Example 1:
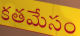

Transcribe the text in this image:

కతమేసం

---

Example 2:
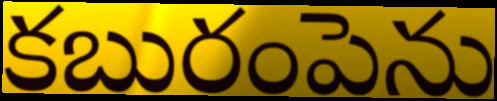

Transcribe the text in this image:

కబురంపెను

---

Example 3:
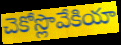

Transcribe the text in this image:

చెకోస్లొవేకియా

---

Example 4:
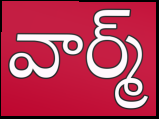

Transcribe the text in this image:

వార్మ్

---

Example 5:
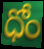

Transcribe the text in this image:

ధోం